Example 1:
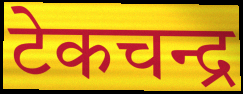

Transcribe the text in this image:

टेकचन्द्र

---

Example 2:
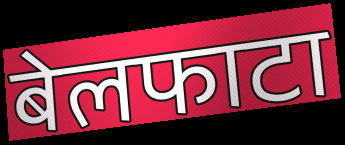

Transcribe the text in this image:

बेलफाटा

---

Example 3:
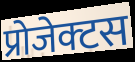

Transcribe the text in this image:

प्रोजेक्‍टस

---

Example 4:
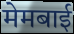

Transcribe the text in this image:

मेमबाई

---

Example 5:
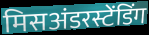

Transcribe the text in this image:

मिसअंडरस्टेंडिंग